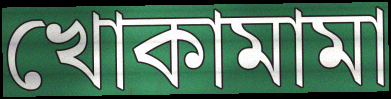
খোকামামা